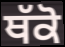
ਥੱਕੋ